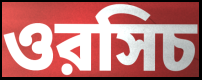
ওরসিচ